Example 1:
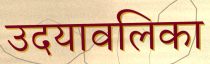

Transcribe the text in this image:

उदयावलिका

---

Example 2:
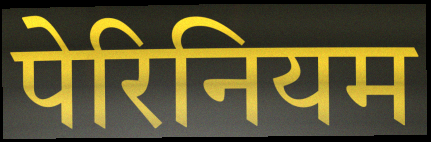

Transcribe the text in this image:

पेरिनियम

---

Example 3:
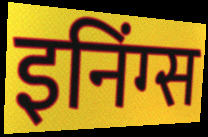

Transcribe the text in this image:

इनिंग्स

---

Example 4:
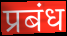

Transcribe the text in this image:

प्रबंध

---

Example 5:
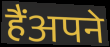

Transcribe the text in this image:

हैंअपने